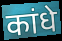
कांधे